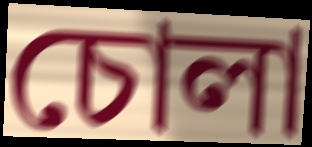
চোলা